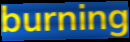
burning